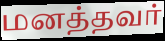
மனத்தவர்